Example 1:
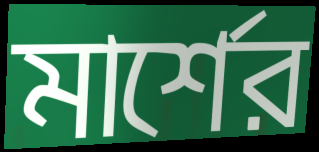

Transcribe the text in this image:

মার্শের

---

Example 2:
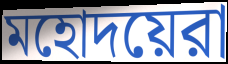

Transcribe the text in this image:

মহোদয়েরা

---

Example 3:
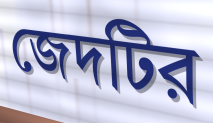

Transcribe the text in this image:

জেদটির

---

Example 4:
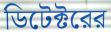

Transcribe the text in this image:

ডিটেক্টরের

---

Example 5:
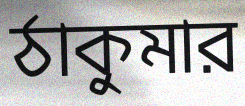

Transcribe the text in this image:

ঠাকুমার